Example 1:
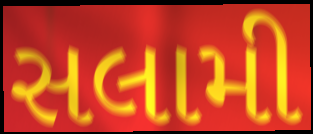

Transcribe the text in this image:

સલામી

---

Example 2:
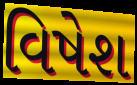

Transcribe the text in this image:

વિષેશ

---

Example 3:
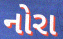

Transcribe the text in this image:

નોરા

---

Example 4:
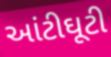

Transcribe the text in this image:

આંટીઘૂટી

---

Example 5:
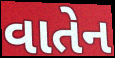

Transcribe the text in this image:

વાતેન